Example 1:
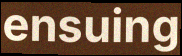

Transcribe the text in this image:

ensuing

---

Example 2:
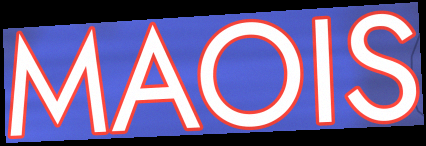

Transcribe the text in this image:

MAOIS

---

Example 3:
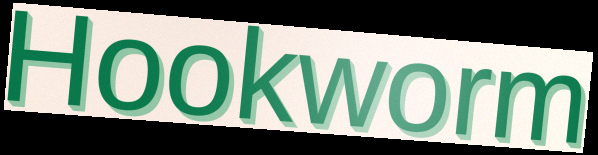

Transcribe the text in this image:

Hookworm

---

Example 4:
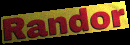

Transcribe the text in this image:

Randor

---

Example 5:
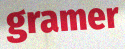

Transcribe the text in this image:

gramer